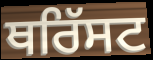
ਥਰਿੱਸਟ